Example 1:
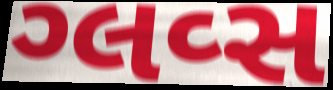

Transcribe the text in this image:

ગ્લવ્સ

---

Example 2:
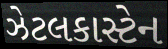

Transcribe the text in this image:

ઝેટલકાસ્ટેન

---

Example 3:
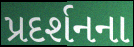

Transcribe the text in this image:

પ્રદર્શનના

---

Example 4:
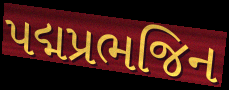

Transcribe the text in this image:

પદ્મપ્રભજિન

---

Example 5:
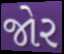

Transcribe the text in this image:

જોર